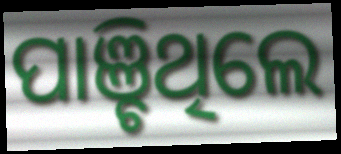
ପାଞ୍ଚିଥିଲେ